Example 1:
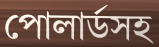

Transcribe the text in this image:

পোলার্ডসহ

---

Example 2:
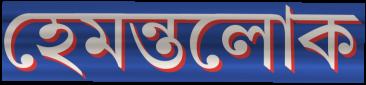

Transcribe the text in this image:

হেমন্তলোক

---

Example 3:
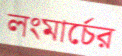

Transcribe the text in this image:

লংমার্চের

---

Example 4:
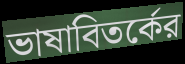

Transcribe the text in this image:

ভাষাবিতর্কের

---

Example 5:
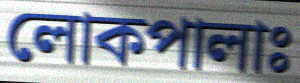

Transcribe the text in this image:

লোকপালাঃ